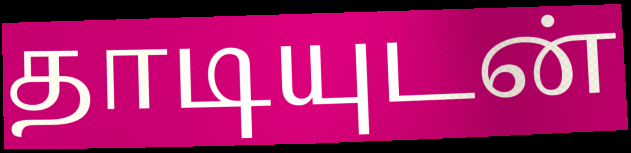
தாடியுடன்